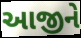
આજીને